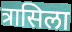
त्रासिला